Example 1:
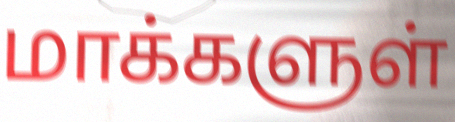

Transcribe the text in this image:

மாக்களுள்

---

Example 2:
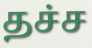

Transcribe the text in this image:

தச்ச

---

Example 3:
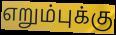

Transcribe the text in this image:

எறும்புக்கு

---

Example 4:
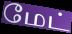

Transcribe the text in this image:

மேட்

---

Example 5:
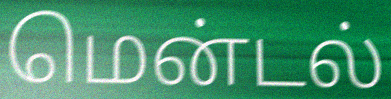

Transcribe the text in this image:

மென்டல்